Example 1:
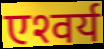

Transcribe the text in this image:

एश्वर्य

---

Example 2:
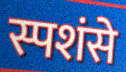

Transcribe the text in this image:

स्पशंसे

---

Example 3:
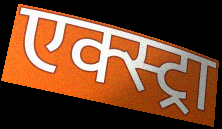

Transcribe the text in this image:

एक्स्ट्रा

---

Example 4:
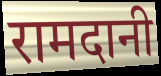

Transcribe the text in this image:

रामदानी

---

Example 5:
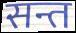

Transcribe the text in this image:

सन्‍त